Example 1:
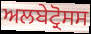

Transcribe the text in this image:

ਅਲਬੇਟ੍ਰੋਸਸ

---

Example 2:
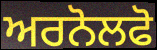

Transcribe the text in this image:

ਅਰਨੋਲਫੋ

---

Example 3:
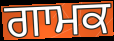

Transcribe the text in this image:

ਗਾਮਕ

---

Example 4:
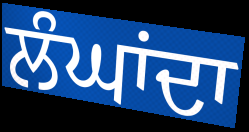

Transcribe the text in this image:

ਲੰਘਾਂਦਾ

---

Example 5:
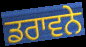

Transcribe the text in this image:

ਡਰਾਵਨੇ